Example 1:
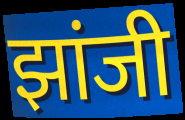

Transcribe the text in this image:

झांजी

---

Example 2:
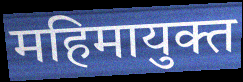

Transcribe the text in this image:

महिमायुक्‍त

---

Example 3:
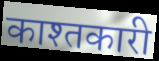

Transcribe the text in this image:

काश्तकारी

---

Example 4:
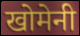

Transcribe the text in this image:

खोमेनी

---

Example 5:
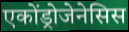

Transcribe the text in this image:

एकोंड्रोजेनेसिस